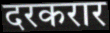
दरकरार